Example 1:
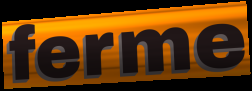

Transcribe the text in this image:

ferme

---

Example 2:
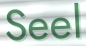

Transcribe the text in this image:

Seel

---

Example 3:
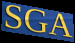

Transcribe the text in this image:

SGA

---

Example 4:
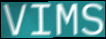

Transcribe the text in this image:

VIMS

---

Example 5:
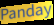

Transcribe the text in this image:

Panday